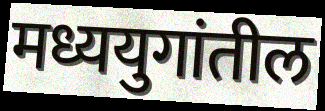
मध्ययुगांतील